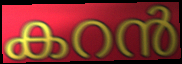
കറൻ